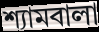
শ্যামবালা